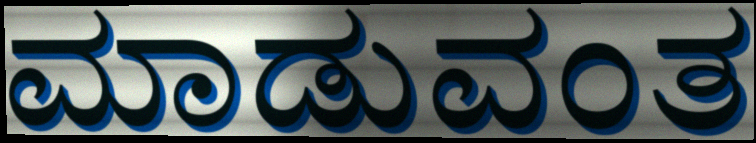
ಮಾಡುವಂತ